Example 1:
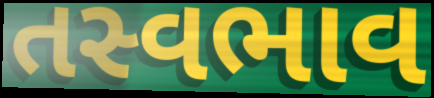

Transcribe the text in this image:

તસ્વભાવ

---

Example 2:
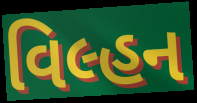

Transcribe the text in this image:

વિલ્હન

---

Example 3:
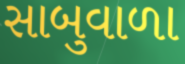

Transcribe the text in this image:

સાબુવાળા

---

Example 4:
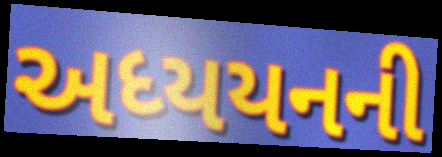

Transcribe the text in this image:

અધ્યયનની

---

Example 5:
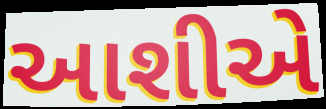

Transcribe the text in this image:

આશીએ